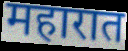
महारात